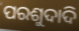
ପରଶୁଦାଦି